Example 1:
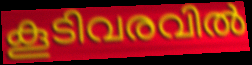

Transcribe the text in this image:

കൂടിവരവിൽ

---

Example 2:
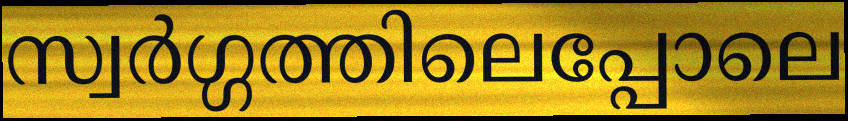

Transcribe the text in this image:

സ്വർഗ്ഗത്തിലെപ്പോലെ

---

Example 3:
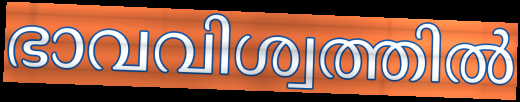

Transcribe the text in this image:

ഭാവവിശ്വത്തിൽ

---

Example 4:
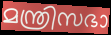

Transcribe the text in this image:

മന്ത്രിസഭാ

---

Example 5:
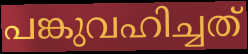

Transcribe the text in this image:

പങ്കുവഹിച്ചത്